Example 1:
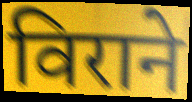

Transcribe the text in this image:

विराने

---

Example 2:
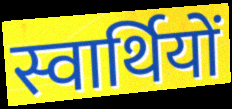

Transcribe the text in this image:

स्वार्थियों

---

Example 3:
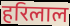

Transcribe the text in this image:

हरिलाल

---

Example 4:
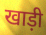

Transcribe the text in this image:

खाड़ी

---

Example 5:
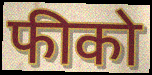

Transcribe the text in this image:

फीको